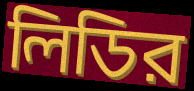
লিডির